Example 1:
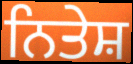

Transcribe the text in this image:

ਨਿਤੇਸ਼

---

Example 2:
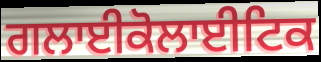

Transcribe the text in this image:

ਗਲਾਈਕੋਲਾਈਟਿਕ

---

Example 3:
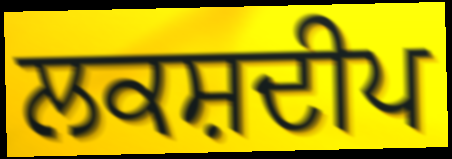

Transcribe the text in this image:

ਲਕਸ਼ਦੀਪ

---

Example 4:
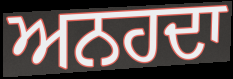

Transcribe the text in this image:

ਅਨਹਦਾ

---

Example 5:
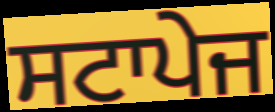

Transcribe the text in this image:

ਸਟਾਪੇਜ